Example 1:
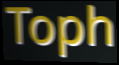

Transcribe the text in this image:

Toph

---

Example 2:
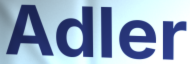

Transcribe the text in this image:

Adler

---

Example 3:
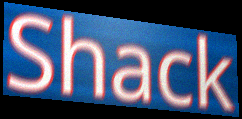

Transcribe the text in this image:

Shack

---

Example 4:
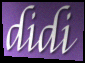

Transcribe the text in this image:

didi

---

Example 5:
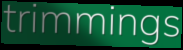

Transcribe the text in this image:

trimmings